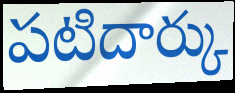
పటిదార్కు